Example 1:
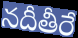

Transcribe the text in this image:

నదీతీరే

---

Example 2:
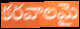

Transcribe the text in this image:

కరవాలమై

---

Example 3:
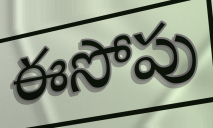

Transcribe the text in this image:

ఈసోపు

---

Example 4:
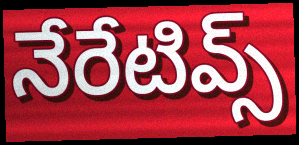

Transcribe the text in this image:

నేరేటివ్స్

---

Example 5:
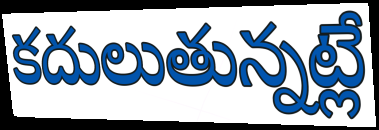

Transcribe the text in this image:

కదులుతున్నట్లే